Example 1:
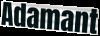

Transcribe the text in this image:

Adamant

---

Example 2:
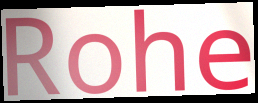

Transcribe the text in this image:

Rohe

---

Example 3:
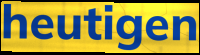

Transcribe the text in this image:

heutigen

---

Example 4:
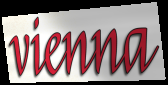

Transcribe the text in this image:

vienna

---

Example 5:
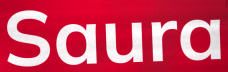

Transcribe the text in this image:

Saura